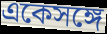
একেসঙ্গে